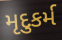
મૃદુકર્મ